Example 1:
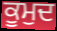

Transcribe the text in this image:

ਕੂਮੁਦ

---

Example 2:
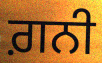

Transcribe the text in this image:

ਗ਼ਨੀ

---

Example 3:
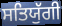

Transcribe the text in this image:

ਸਤਿਯੁੱਗੀ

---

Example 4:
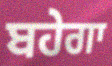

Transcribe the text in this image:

ਬਹੇਗਾ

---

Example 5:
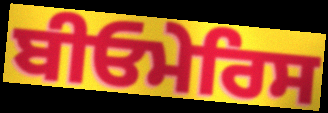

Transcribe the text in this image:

ਬੀਓਮੇਰਿਸ